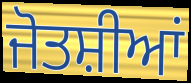
ਜੋਤਸ਼ੀਆਂ